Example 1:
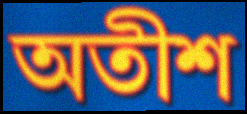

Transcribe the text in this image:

অতীশ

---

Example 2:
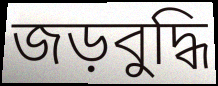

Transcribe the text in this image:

জড়বুদ্ধি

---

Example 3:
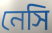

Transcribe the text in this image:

নেসি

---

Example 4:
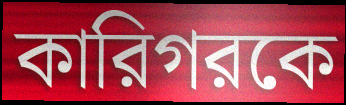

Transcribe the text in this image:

কারিগরকে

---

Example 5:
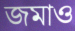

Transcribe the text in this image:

জমাও